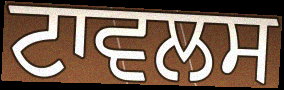
ਟਾਵਲਸ